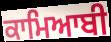
ਕਾਮਿਆਬੀ